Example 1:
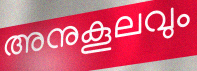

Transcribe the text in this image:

അനുകൂലവും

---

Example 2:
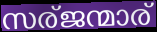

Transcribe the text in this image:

സര്ജന്മാര്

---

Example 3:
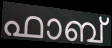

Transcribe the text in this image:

ഫാബ്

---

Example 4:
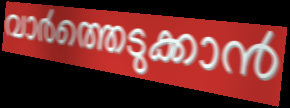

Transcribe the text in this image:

വാർത്തെടുക്കാൻ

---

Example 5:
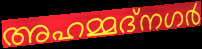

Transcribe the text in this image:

അഹമ്മദ്നഗർ